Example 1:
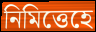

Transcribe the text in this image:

নিমিত্তেহে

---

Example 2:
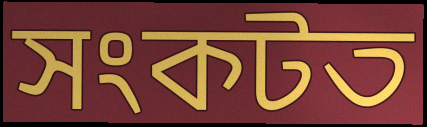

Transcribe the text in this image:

সংকটত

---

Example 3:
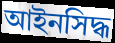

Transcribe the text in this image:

আইনসিদ্ধ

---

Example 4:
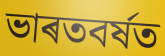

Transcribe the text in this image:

ভাৰতবৰ্ষত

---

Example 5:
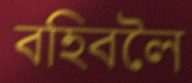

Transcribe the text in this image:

বহিবলৈ